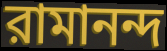
রামানন্দ